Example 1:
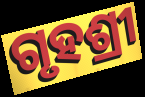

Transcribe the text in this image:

ଗୃହଶ୍ରୀ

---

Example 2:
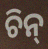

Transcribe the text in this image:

ଚିନ୍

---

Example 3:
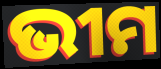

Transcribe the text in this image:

ଭୀମ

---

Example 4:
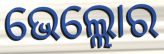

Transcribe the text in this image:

ଭେଲ୍ଲୋର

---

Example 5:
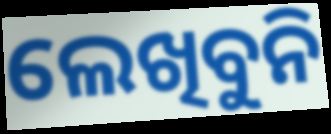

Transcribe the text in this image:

ଲେଖିବୁନି